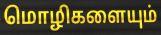
மொழிகளையும்